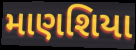
માણશિયા